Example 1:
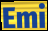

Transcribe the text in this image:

Emi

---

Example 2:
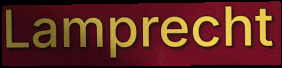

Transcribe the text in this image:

Lamprecht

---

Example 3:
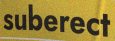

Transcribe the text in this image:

suberect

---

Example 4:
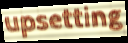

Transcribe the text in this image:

upsetting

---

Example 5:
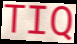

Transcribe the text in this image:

TIQ